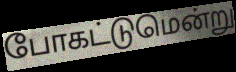
போகட்டுமென்று